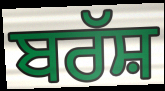
ਬਰੱਸ਼